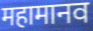
महामानव